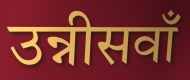
उन्नीसवाँ